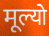
मूल्यो